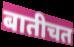
बातीचत